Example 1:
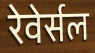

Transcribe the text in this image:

रेवेर्सल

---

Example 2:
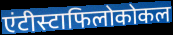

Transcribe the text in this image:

एंटीस्टाफिलोकोकल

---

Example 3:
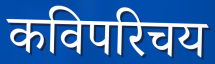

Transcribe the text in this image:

कविपरिचय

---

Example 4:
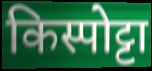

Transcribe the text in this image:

किस्पोट्टा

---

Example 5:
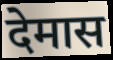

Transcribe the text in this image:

देमास